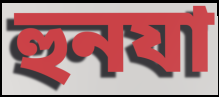
হুনযা